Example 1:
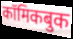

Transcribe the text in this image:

कॉमिकबुक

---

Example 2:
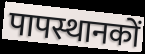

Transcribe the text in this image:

पापस्थानकों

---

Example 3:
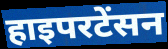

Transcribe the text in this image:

हाइपरटेंसन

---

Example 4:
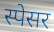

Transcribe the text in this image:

स्पेसर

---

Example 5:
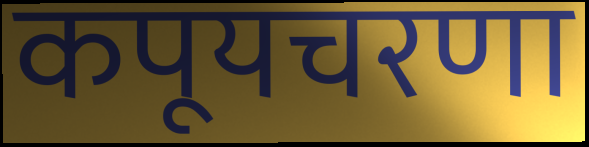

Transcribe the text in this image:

कपूयचरणा